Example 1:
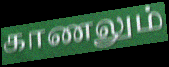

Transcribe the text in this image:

காணலும்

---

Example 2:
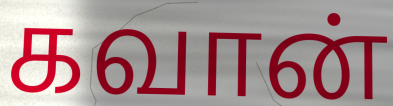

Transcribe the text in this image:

கவான்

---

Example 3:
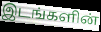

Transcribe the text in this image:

இடங்களின்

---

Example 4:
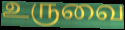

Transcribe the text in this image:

உருவை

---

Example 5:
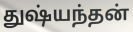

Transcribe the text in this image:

துஷ்யந்தன்